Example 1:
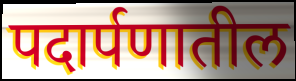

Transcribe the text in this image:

पदार्पणातील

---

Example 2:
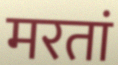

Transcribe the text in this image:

मरतां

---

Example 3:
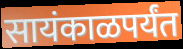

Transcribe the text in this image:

सायंकाळपर्यंत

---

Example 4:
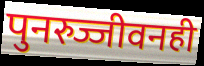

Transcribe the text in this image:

पुनरुज्जीवनही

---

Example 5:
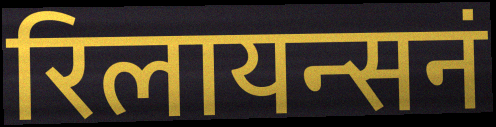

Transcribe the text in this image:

रिलायन्सनं